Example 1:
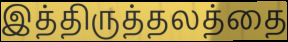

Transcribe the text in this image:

இத்திருத்தலத்தை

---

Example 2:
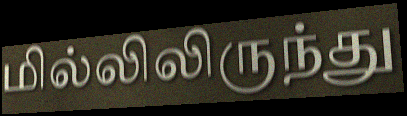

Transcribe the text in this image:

மில்லிலிருந்து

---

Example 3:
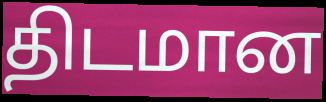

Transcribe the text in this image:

திடமான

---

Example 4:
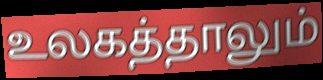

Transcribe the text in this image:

உலகத்தாலும்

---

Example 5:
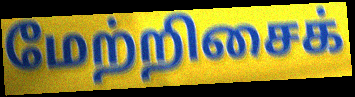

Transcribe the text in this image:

மேற்றிசைக்